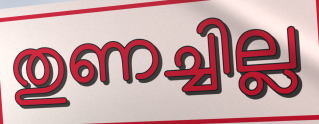
തുണച്ചില്ല